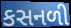
કસનળી